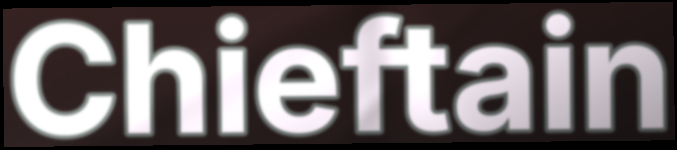
Chieftain